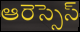
ఆరెస్సెస్